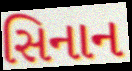
સિનાન